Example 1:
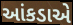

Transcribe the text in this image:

આંકડાએ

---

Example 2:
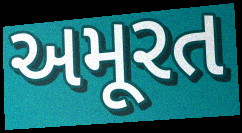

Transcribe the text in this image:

અમૂરત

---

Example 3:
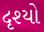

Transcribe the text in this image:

દૃશ્યો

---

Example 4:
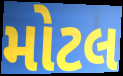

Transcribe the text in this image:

મોટલ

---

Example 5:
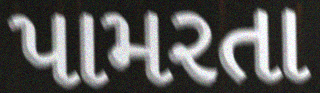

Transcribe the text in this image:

પામરતા